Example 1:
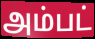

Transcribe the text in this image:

அம்பட்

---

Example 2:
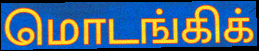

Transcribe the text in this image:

மொடங்கிக்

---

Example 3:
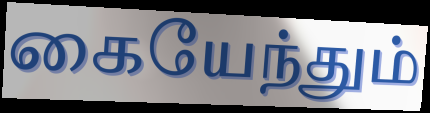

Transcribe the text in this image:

கையேந்தும்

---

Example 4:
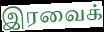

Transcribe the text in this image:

இரவைக்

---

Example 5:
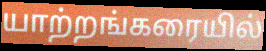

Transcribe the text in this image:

யாற்றங்கரையில்